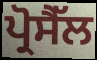
ਪ੍ਰੋਸੈੱਲ